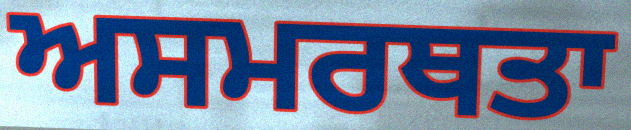
ਅਸਮਰਥਤਾ